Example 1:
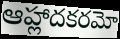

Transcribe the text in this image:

ఆహ్లాదకరమో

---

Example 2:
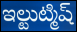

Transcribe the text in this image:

ఇల్టుట్మిష్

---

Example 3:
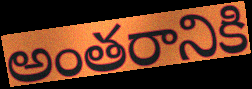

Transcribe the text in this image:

అంతరానికి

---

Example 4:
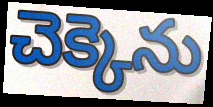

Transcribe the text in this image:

చెక్కెను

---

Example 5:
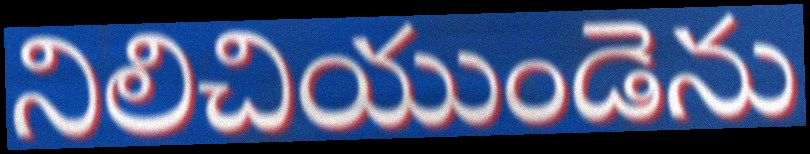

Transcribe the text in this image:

నిలిచియుండెను